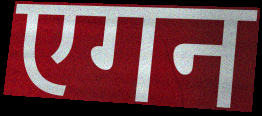
एगन